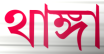
থাঙ্গা